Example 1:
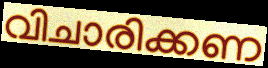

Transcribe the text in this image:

വിചാരിക്കണ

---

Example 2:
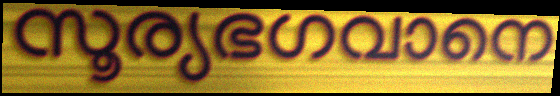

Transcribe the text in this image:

സൂര്യഭഗവാനെ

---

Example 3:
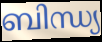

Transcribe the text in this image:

ബിന്ധ്യ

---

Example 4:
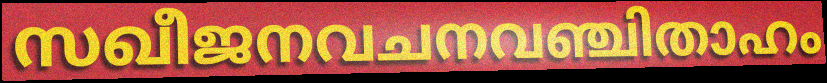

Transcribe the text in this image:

സഖീജനവചനവഞ്ചിതാഹം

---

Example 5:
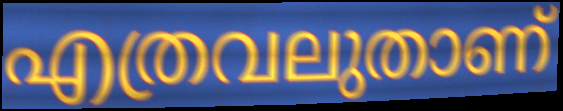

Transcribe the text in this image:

എത്രവലുതാണ്